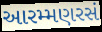
આરમ્મણરસં